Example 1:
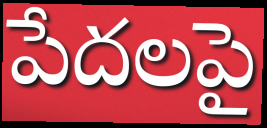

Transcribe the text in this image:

పేదలపై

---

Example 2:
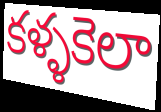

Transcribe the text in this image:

కళ్ళకెలా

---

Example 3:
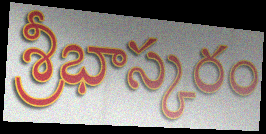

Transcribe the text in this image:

శ్రీభాస్కరం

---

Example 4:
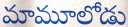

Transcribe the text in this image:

మామూలోడు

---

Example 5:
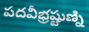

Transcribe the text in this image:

పదవీభ్రష్టుణ్ని